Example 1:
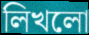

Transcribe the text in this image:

লিখলো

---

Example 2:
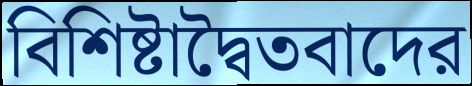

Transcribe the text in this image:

বিশিষ্টাদ্বৈতবাদের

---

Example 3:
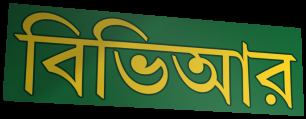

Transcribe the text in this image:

বিভিআর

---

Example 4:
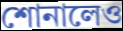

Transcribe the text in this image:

শোনালেও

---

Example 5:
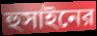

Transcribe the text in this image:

হুসাইনের